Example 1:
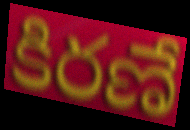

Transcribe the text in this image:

కిరణే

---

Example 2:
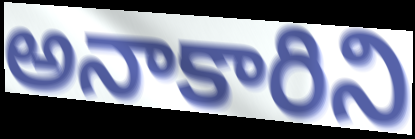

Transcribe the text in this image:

అనాకారిని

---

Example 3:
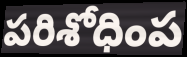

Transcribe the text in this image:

పరిశోధింప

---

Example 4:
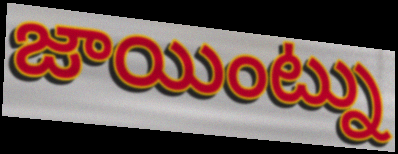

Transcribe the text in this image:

జాయింట్ను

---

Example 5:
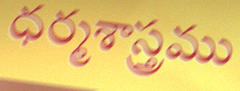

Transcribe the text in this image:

ధర్మశాస్త్రము